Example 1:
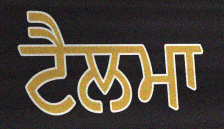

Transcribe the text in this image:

ਟੈਲਮਾ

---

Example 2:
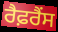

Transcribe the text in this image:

ਰੈਫ਼ਰੈਂਸ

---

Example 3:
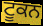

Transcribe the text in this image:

ਟੂਕਨ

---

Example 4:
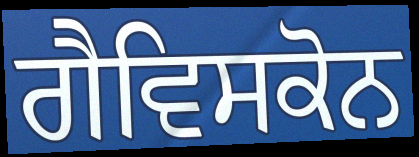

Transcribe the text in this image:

ਗੈਵਿਸਕੋਨ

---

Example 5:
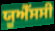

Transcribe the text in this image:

ਯੂਐੱਸਸੀ